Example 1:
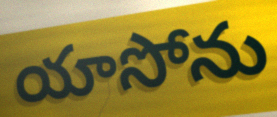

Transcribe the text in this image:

యాసోను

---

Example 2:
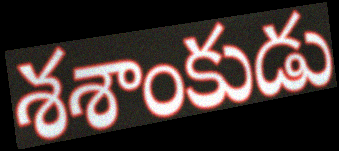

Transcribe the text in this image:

శశాంకుడు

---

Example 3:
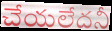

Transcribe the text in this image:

చేయలేదనీ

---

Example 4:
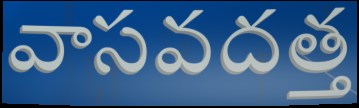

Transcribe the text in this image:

వాసవదత్త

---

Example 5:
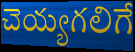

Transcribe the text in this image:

చెయ్యగలిగే